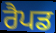
ਰੈਪਡ